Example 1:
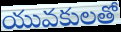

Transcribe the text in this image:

యువకులతో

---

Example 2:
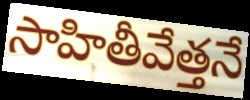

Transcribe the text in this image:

సాహితీవేత్తనే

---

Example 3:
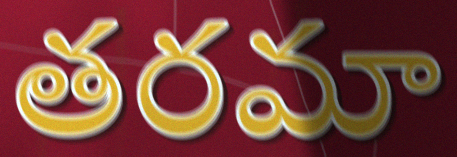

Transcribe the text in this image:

తరమా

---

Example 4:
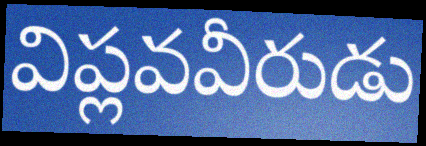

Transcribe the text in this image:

విప్లవవీరుడు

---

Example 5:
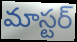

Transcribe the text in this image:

మాస్టర్